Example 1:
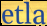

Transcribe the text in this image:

etla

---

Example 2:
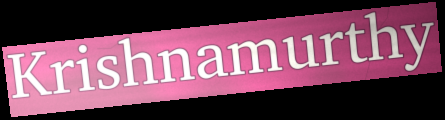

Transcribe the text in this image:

Krishnamurthy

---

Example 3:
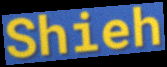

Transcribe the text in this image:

Shieh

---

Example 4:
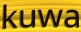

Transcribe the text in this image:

kuwa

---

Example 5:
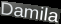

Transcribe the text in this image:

Damila